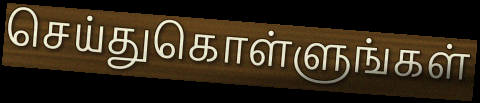
செய்துகொள்ளுங்கள்